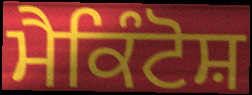
ਮੈਕਿੰਟੋਸ਼